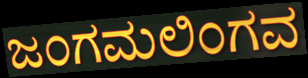
ಜಂಗಮಲಿಂಗವ